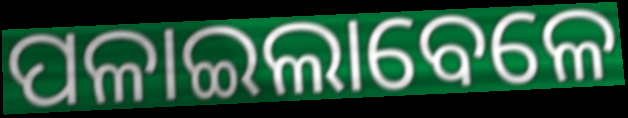
ପଳାଇଲାବେଳେ